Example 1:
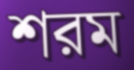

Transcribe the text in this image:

শরম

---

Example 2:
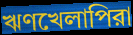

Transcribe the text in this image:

ঋণখেলাপিরা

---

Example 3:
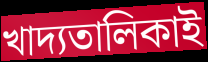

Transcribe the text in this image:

খাদ্যতালিকাই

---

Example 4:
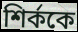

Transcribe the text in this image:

শির্ককে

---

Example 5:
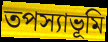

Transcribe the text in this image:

তপস্যাভূমি